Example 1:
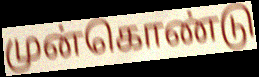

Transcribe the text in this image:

முன்கொண்டு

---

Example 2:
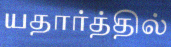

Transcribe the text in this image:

யதார்த்தில்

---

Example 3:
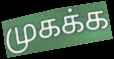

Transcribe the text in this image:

முகக்க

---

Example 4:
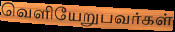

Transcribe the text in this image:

வெளியேறுபவர்கள்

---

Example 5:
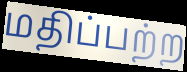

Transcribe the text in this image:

மதிப்பற்ற